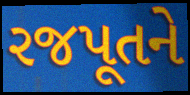
રજપૂતને